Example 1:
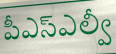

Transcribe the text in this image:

పీఎస్ఎల్వీ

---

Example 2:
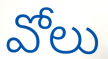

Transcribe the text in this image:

వోలు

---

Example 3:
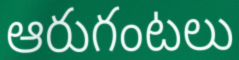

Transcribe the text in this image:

ఆరుగంటలు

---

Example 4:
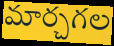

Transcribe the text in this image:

మార్చగల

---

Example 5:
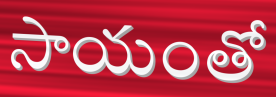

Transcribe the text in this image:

సాయంతో